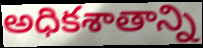
అధికశాతాన్ని